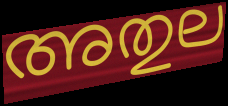
അതുല